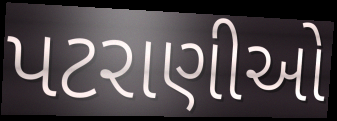
પટરાણીઓ